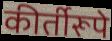
कीर्तीरूपे